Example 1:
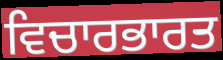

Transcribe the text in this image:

ਵਿਚਾਰਭਾਰਤ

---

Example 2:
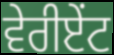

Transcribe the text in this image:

ਵੇਰੀਏਂਟ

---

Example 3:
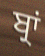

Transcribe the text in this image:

ਬ੍ਰਾਂ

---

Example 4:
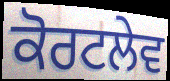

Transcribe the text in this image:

ਕੋਰਟਲੇਵ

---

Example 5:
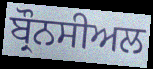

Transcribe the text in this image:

ਬ੍ਰੌਨਸੀਅਲ